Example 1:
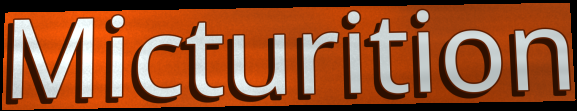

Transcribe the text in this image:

Micturition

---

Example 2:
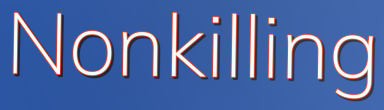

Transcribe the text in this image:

Nonkilling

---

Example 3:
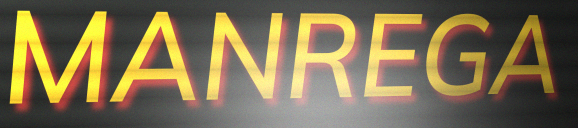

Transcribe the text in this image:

MANREGA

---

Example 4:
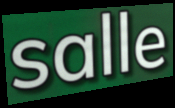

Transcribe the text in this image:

salle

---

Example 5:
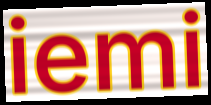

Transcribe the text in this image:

iemi